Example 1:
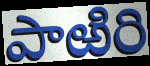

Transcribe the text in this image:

పాఱిరి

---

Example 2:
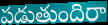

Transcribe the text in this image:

పడుతుందిరా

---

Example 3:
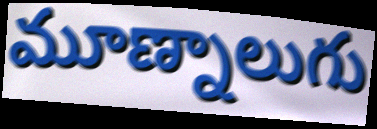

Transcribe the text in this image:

మూణ్నాలుగు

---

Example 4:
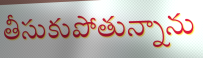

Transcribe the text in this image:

తీసుకుపోతున్నాను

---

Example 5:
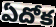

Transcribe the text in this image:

ఏదోక